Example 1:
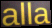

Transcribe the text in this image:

alla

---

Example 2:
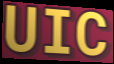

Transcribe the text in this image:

UIC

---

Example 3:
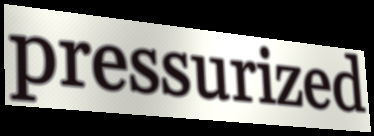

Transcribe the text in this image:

pressurized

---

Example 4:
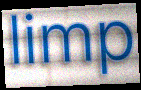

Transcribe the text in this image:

limp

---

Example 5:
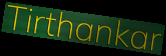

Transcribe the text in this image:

Tirthankar